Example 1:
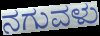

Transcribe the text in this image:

ನಗುವಳು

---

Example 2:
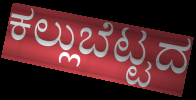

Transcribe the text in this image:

ಕಲ್ಲುಬೆಟ್ಟದ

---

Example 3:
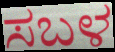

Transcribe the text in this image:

ಸಬಳ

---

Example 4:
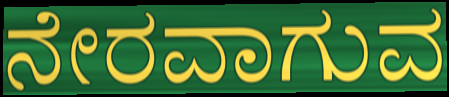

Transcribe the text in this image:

ನೇರವಾಗುವ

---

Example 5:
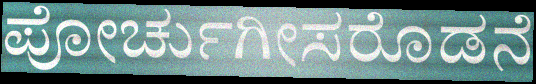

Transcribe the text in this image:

ಪೋರ್ಚುಗೀಸರೊಡನೆ